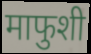
माफुशी